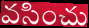
వసించు